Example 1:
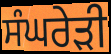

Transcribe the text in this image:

ਸੰਘਰੇੜੀ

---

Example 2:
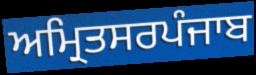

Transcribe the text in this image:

ਅਮ੍ਰਿਤਸਰਪੰਜਾਬ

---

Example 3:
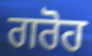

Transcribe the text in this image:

ਗਰੋਹ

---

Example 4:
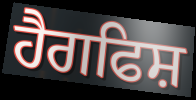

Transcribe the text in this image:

ਹੈਗਫਿਸ਼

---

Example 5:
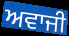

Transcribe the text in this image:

ਅਵਾਜੀ